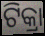
ଟିକ୍ରା